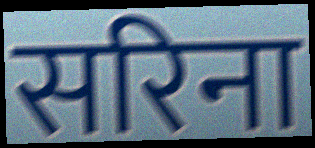
सरिना